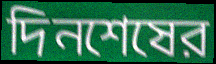
দিনশেষের